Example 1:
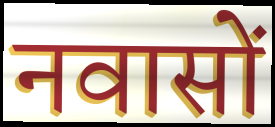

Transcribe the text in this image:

नवासों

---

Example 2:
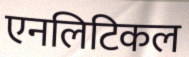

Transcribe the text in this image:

एनलिटिकल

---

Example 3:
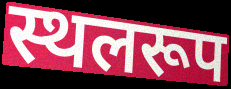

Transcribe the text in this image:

स्थलरूप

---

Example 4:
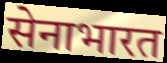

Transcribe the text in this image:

सेनाभारत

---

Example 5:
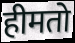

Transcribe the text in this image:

हीमतो